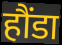
हौंडा